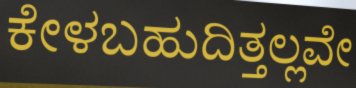
ಕೇಳಬಹುದಿತ್ತಲ್ಲವೇ